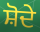
ਸ਼ੋਦੇ